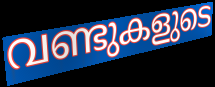
വണ്ടുകളുടെ